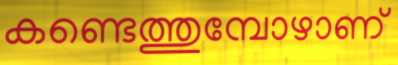
കണ്ടെത്തുമ്പോഴാണ്